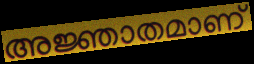
അജ്ഞാതമാണ്